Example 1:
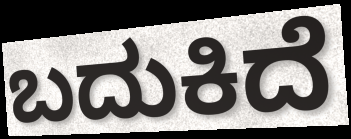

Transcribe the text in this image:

ಬದುಕಿದೆ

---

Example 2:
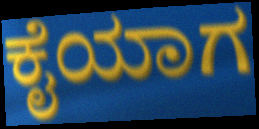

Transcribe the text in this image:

ಕೈಯಾಗ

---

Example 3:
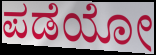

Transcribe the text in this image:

ಪಡೆಯೋ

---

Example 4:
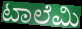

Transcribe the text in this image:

ಟಾಲೆಮಿ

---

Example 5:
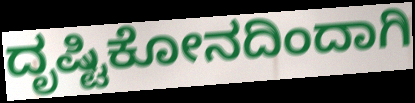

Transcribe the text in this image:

ದೃಷ್ಟಿಕೋನದಿಂದಾಗಿ